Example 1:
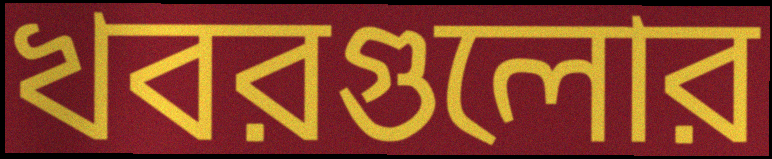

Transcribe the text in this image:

খবরগুলোর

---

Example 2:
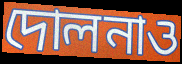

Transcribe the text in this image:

দোলনাও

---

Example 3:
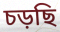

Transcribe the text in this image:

চড়ছি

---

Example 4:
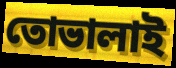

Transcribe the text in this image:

তোভালাই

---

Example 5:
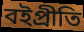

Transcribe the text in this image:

বইপ্রীতি